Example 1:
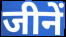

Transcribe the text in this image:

जीनें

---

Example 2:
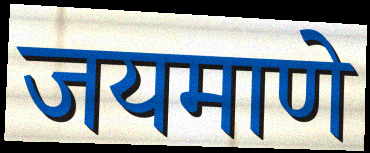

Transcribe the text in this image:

जयमाणे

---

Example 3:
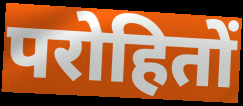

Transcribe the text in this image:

परोहितों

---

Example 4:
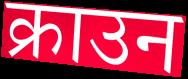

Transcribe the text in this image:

क्राउन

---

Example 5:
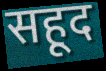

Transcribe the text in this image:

सहूद